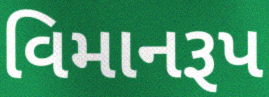
વિમાનરૂપ